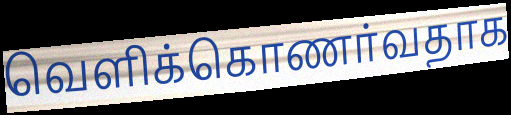
வெளிக்கொணர்வதாக